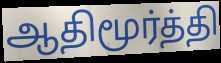
ஆதிமூர்த்தி